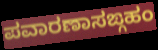
ಪವಾರಣಾಸಙ್ಗಹಂ